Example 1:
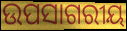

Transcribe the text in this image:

ଉପସାଗରୀୟ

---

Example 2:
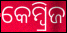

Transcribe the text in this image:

କେମ୍ବ୍ରିଜ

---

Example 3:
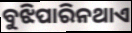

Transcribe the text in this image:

ବୁଝିପାରିନଥାଏ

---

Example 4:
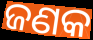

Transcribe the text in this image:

ଜଣକ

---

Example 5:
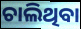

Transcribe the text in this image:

ଚାଲିଥିବା